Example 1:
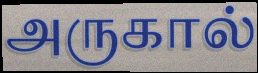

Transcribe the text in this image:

அருகால்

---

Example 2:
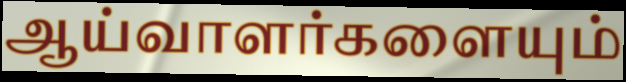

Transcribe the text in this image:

ஆய்வாளர்களையும்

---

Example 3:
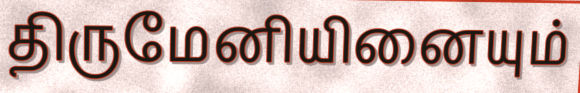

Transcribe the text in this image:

திருமேனியினையும்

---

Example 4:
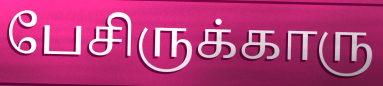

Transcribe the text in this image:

பேசிருக்காரு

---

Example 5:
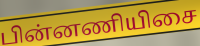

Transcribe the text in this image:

பின்னணியிசை